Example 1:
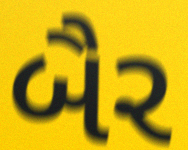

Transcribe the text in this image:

બૈર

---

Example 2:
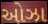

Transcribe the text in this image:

ઓઝા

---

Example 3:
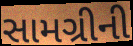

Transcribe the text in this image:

સામગ્રીની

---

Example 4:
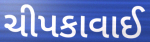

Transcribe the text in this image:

ચીપકાવાઈ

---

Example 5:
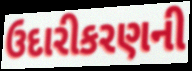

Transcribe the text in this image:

ઉદારીકરણની